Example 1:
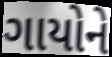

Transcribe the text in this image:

ગાયોને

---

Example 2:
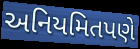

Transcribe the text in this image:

અનિયમિતપણે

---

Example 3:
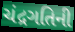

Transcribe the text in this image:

ચંદ્રગતિની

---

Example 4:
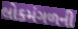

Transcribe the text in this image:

લોકમંગળની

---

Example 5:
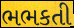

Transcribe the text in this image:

ભભકતી